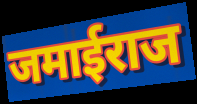
जमाईराज